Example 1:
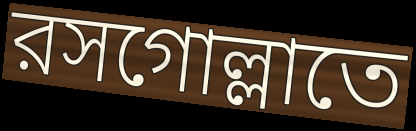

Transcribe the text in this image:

রসগোল্লাতে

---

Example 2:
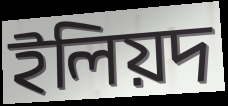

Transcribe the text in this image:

ইলিয়দ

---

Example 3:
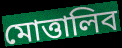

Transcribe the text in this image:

মোত্তালিব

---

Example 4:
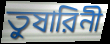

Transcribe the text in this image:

তুষারিনী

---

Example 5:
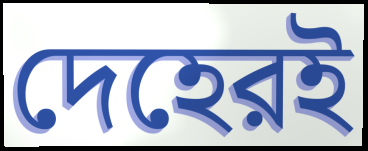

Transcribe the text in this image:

দেহেরই